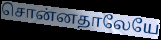
சொன்னதாலேயே